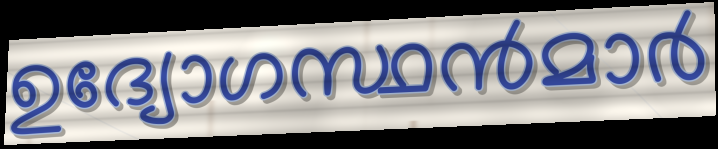
ഉദ്യോഗസ്ഥൻമാർ